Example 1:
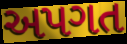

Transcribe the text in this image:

અપગત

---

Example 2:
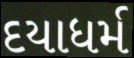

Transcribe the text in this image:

દયાધર્મ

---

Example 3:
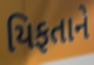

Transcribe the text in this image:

યિફતાને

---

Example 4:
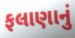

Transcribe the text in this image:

ફલાણાનું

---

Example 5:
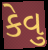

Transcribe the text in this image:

કેવુ